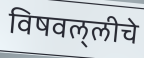
विषवल्लीचे